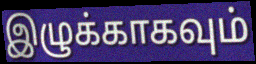
இழுக்காகவும்